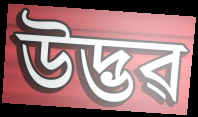
উদ্ভৱ